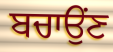
ਬਚਾਉਂਣ